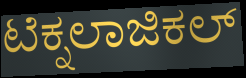
ಟೆಕ್ನಲಾಜಿಕಲ್